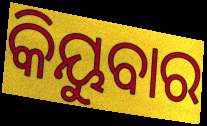
କିୟୁବାର